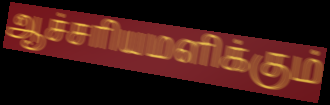
ஆச்சரியமளிக்கும்